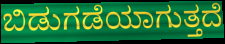
ಬಿಡುಗಡೆಯಾಗುತ್ತದೆ